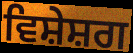
ਵਿਸ਼ੇਸ਼ਗ